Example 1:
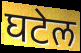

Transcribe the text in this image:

घटेल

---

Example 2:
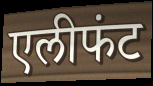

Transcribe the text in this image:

एलीफंट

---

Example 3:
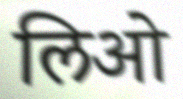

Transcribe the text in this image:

लिओ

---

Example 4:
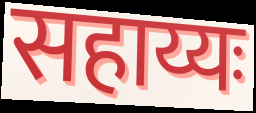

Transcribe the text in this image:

सहाय्यः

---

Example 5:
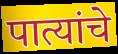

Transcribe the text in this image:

पात्यांचे